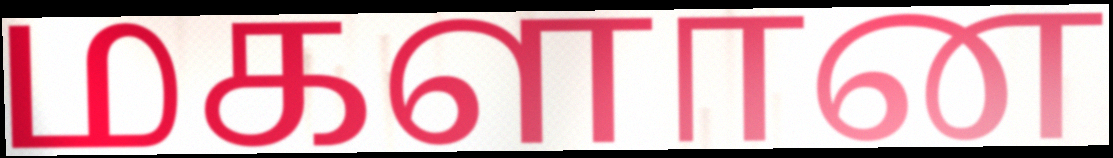
மகளான